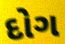
દોગ